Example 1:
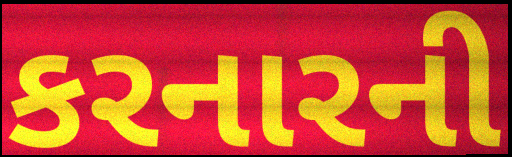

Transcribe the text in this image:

કરનારની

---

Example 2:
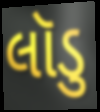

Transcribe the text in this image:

લૉડુ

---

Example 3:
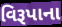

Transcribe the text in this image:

વિરૂપાના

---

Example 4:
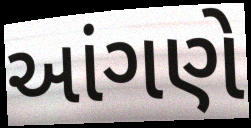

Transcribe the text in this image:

આંગણે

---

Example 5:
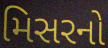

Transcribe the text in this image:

મિસરનો